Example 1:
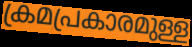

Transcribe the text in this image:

ക്രമപ്രകാരമുള്ള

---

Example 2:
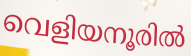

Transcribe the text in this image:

വെളിയനൂരിൽ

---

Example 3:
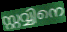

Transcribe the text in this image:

സ്റ്റവ്വിനെ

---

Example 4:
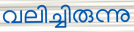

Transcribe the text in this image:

വലിച്ചിരുന്നു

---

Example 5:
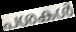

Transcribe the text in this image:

പശകൾ